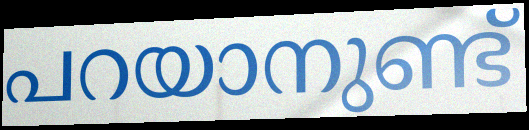
പറയാനുണ്ട്